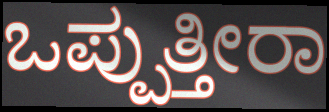
ಒಪ್ಪುತ್ತೀರಾ